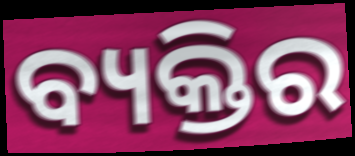
ବ୍ୟକ୍ତିର